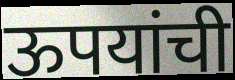
ऊपयांची